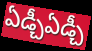
ఏడ్చీఏడ్చీ